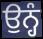
ਉਨ੍ਹੰ